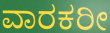
ವಾರಕರೀ